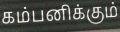
கம்பனிக்கும்